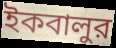
ইকবালুর